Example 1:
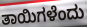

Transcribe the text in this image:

ತಾಯಿಗಳೆಂದು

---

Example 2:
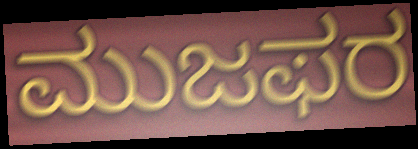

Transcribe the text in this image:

ಮುಜಫರ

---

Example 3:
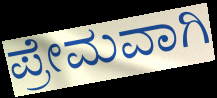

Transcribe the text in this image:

ಪ್ರೇಮವಾಗಿ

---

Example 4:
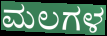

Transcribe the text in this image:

ಮಲಗಳ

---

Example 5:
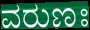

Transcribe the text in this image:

ವರುಣಃ